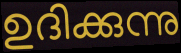
ഉദിക്കുന്നു